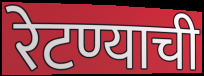
रेटण्याची